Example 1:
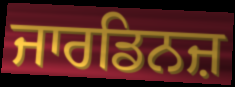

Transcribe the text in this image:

ਜਾਰਡਿਨਜ਼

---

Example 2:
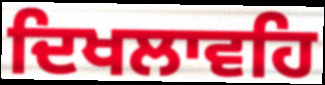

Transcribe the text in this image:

ਦਿਖਲਾਵਹਿ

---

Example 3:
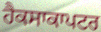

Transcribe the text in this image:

ਹੈਕਸਾਕਾਪਟਰ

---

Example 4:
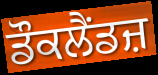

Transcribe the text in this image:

ਡੌਕਲੈਂਡਜ਼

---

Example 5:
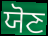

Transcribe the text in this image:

ਯੋਣ